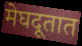
मेघदूतात